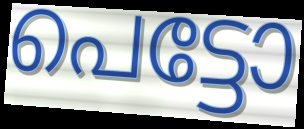
പെട്ടോ